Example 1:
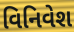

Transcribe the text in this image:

વિનિવેશ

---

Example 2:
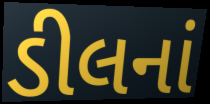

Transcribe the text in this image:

ડીલનાં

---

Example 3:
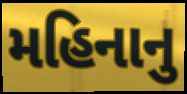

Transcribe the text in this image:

મહિનાનુ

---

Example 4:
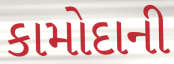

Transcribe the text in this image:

કામોદાની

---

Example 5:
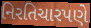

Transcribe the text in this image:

નિરતિચારપણે